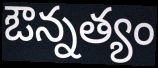
ఔన్నత్యం